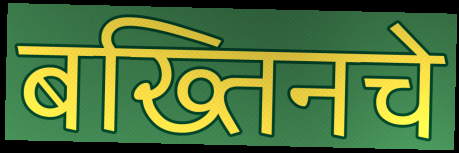
बख्तिनचे